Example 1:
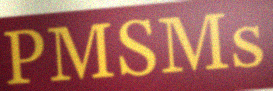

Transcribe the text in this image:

PMSMs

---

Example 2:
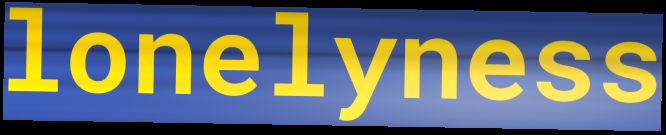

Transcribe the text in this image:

lonelyness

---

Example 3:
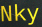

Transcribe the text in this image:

Nky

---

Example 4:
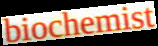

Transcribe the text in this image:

biochemist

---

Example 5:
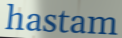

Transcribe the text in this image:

hastam